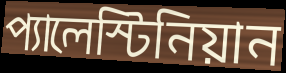
প্যালেস্টিনিয়ান